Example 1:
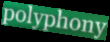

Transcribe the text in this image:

polyphony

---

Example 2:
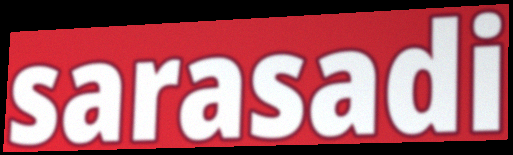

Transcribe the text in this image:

sarasadi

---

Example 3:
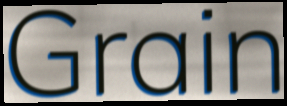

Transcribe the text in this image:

Grain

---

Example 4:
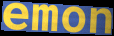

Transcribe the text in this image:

emon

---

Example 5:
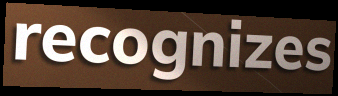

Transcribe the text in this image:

recognizes